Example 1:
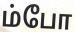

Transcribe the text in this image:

ம்போ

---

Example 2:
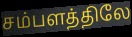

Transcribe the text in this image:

சம்பளத்திலே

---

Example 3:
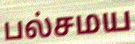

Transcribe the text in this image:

பல்சமய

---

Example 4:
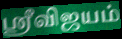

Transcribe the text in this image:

ஸ்ரீவிஜயம்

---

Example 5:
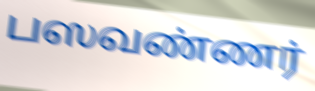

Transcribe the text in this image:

பஸவண்ணர்